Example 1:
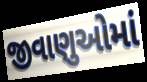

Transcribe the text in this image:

જીવાણુઓમાં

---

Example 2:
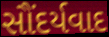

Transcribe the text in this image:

સૌંદર્યવાદ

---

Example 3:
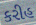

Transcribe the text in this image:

કરીહ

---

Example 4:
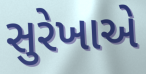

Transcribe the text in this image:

સુરેખાએ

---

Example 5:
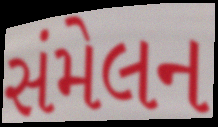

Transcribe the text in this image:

સંમેલન